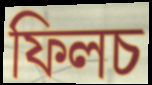
ফিলচ